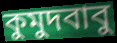
কুমুদবাবু